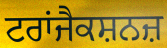
ਟਰਾਂਜੈਕਸ਼ਨਜ਼